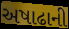
અષાઢાની